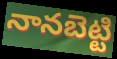
నానబెట్టి